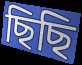
ছিছি